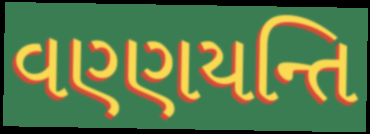
વણ્ણયન્તિ